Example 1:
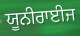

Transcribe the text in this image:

ਯੂਨੀਰਾਈਜ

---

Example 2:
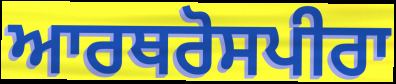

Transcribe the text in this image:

ਆਰਥਰੋਸਪੀਰਾ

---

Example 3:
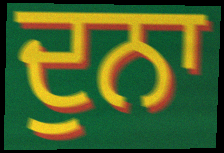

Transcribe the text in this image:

ਦੁਨਾ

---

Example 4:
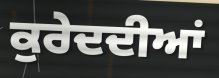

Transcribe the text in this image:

ਕੁਰੇਦਦੀਆਂ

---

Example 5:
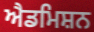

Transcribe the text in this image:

ਐਡਮਿਸ਼ਨ